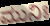
ಮುನಿಃ